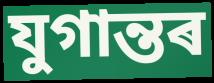
যুগান্তৰ